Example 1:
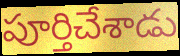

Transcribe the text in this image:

పూర్తిచేశాడు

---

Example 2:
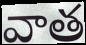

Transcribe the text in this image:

వాత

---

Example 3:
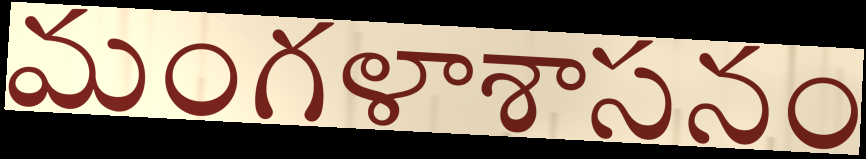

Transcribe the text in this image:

మంగళాశాసనం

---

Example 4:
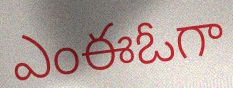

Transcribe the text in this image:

ఎంఈఓగా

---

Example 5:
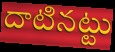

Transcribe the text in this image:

దాటినట్టు